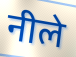
नीले